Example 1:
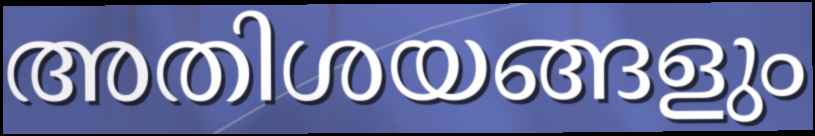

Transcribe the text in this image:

അതിശയങ്ങളും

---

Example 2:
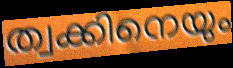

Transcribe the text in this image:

ത്വക്കിനെയും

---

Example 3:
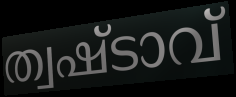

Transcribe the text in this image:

ത്വഷ്ടാവ്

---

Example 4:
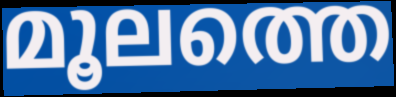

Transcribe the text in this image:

മൂലത്തെ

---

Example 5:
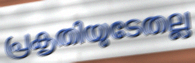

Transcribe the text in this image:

പ്രകൃതിയുടേതല്ല